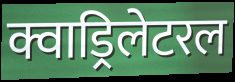
क्वाड्रिलेटरल